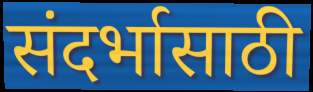
संदर्भासाठी